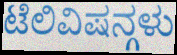
ಟೆಲಿವಿಷನ್ಗಳು